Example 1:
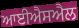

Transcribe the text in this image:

ਆਈਐਸਐਲ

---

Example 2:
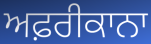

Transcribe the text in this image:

ਅਫ਼ਰੀਕਾਨਾ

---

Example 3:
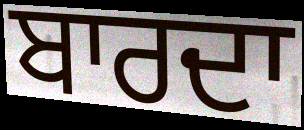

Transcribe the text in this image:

ਬਾਰਦਾ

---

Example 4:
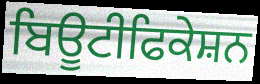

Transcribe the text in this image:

ਬਿਊਟੀਫਿਕੇਸ਼ਨ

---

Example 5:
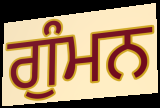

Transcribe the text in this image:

ਗੁੰਮਨ